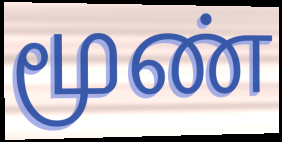
மூண்